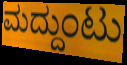
ಮದ್ದುಂಟು